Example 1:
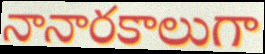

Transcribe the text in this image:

నానారకాలుగా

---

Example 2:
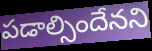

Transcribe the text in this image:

పడాల్సిందేనని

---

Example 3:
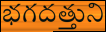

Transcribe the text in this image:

భగదత్తుని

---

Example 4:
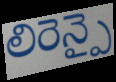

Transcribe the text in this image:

లిరెన్పై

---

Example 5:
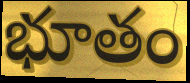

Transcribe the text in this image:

భూతం